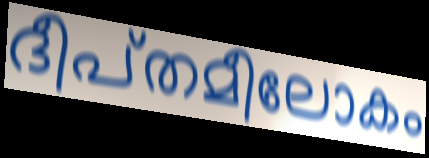
ദീപ്‌തമീലോകം